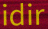
idir